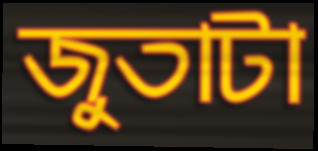
জুতাটা